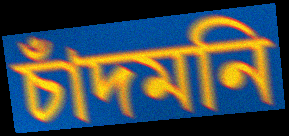
চাঁদমনি